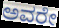
ಅವರೇ